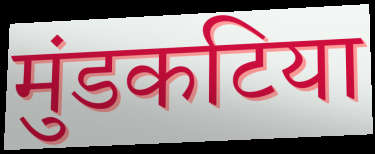
मुंडकटिया